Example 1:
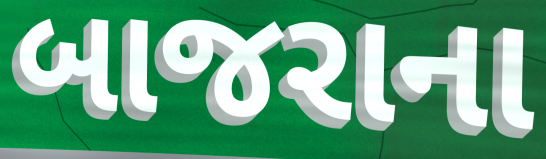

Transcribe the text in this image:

બાજરાના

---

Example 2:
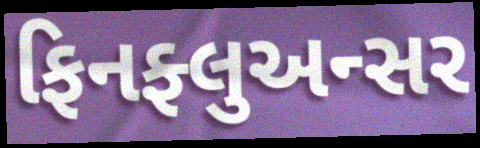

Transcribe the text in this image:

ફિનફ્લુઅન્સર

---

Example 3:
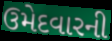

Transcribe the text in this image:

ઉમેદવારની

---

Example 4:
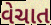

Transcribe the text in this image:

વેચાત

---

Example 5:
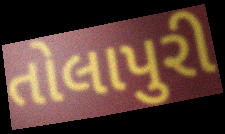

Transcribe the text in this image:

તોલાપુરી